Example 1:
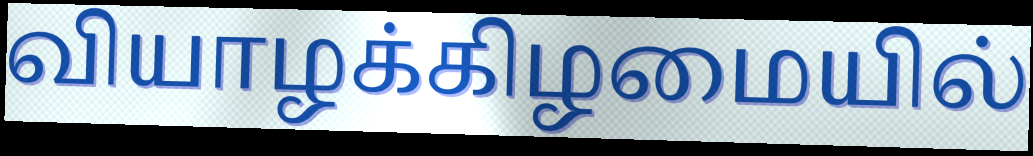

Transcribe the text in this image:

வியாழக்கிழமையில்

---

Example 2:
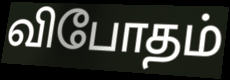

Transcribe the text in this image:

விபோதம்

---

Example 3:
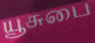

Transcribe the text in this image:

யூசுபை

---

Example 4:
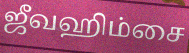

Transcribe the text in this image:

ஜீவஹிம்சை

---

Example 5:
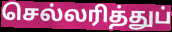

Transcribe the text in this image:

செல்லரித்துப்